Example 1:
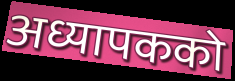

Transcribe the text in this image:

अध्यापकको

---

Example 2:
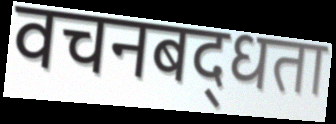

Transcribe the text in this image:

वचनबद्धता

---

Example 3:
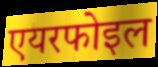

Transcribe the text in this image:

एयरफोइल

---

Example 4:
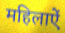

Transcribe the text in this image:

महिलाऐं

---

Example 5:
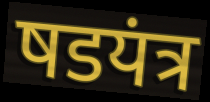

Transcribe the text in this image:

षडयंत्र